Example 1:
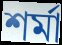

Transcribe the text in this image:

শৰ্মা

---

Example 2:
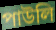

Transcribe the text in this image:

পাউলি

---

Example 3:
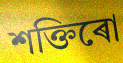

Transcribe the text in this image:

শক্তিৰো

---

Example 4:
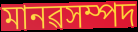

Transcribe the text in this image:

মানৱসম্পদ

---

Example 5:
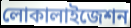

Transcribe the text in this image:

লোকালাইজেশন